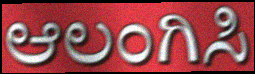
ಆಲಂಗಿಸಿ